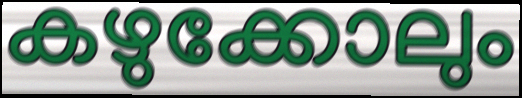
കഴുക്കോലും